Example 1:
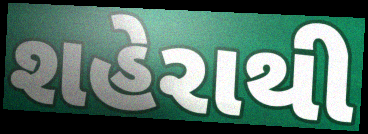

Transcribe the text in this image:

શહેરાથી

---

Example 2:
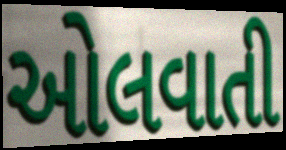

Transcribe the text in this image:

ઓલવાતી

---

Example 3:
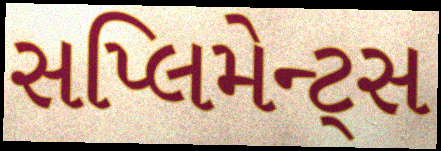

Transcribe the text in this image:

સપ્લિમેન્ટ્સ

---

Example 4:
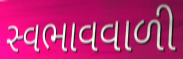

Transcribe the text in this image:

સ્વભાવવાળી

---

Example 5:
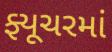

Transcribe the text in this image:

ફ્યૂચરમાં